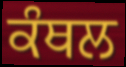
ਕੰਥਲ